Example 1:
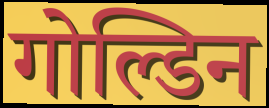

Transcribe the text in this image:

गोल्डिन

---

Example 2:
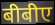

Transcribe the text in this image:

बीबीए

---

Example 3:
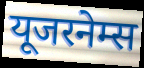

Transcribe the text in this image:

यूजरनेम्स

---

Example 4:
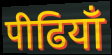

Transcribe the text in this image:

पीढियाँ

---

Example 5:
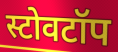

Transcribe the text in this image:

स्टोवटॉप